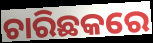
ଚାରିଛକରେ